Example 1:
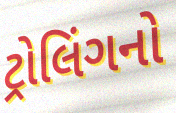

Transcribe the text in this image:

ટ્રોલિંગનો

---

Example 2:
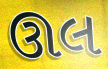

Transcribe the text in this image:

ઊલ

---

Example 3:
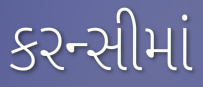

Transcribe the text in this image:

કરન્સીમાં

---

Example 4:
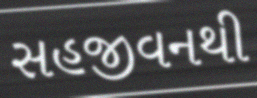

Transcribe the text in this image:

સહજીવનથી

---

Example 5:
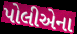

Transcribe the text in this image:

પોલીએના